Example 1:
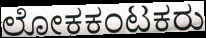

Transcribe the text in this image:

ಲೋಕಕಂಟಕರು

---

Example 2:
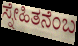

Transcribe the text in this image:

ಸ್ನೇಹಿತನೆಂಬ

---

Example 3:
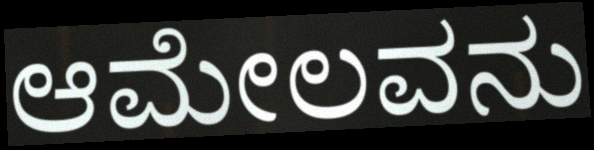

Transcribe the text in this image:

ಆಮೇಲವನು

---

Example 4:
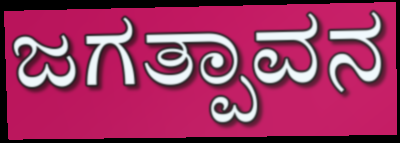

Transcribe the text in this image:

ಜಗತ್ಪಾವನ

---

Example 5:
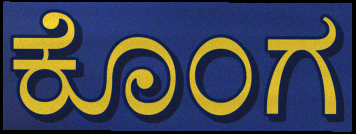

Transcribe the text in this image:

ಕೊಂಗ